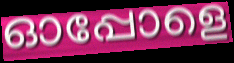
ഓപ്പോളെ